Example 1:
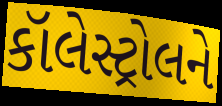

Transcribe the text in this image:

કૉલેસ્ટ્રોલને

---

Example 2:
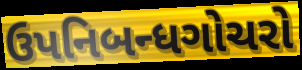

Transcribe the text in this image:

ઉપનિબન્ધગોચરો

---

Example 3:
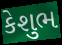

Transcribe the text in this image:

કેશુભ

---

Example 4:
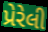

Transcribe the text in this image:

પ્રેરેલી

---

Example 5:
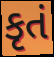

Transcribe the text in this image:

કૃતં